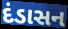
દંડાસન